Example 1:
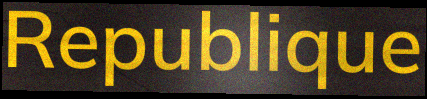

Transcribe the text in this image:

Republique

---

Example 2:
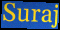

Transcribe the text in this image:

Suraj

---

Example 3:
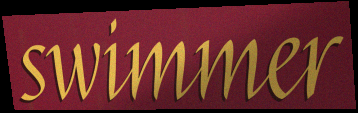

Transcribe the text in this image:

swimmer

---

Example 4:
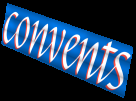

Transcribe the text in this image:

convents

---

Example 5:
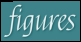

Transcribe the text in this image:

figures